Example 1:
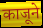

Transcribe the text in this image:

काजूने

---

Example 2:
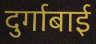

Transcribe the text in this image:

दुर्गाबाई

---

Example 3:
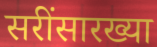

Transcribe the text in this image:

सरींसारख्या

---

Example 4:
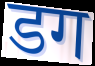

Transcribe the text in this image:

डग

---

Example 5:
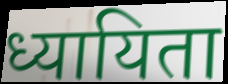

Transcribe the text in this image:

ध्यायिता